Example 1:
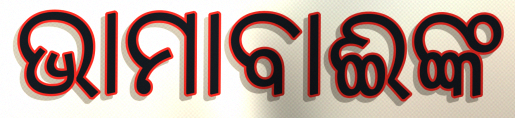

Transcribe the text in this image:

ଭାମାବାଈଙ୍କ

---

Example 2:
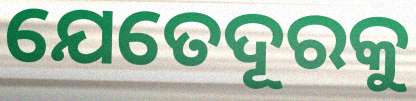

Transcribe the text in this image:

ଯେତେଦୂରକୁ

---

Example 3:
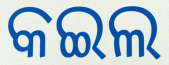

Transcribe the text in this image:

କଇଲ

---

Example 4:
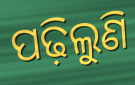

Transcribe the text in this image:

ପଢ଼ିଲୁଣି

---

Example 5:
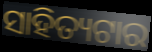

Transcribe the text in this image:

ସାହିତ୍ୟଟାର